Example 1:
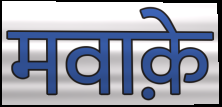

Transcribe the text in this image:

मवाक़े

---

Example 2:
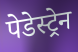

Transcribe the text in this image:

पेडेस्ट्रेन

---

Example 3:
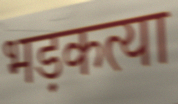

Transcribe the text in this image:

भड़कत्या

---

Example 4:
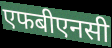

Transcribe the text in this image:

एफबीएनसी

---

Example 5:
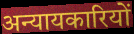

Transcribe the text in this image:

अन्यायकारियों